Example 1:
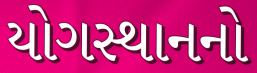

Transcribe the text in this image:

યોગસ્થાનનો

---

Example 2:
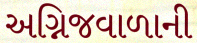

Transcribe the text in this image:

અગ્નિજવાળાની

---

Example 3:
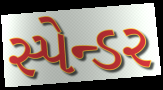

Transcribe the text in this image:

સ્પેન્ડર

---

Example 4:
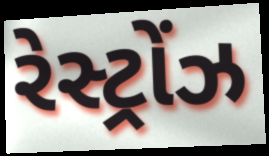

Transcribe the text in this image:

રેસ્ટ્રોંઝ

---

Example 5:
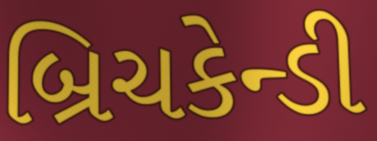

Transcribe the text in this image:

બ્રિચકેન્ડી